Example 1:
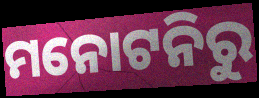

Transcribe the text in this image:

ମନୋଟନିରୁ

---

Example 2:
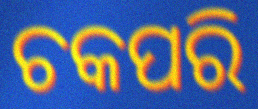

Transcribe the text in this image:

ଚକପରି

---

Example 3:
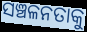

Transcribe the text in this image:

ସଞ୍ଚଳନତାକୁ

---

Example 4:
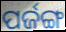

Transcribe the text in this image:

ପର୍ଜଙ୍ଗ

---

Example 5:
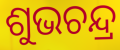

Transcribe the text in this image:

ଶୁଭଚନ୍ଦ୍ର